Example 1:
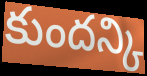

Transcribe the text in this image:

కుందన్కి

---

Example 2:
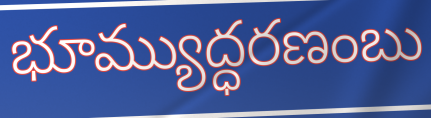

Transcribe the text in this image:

భూమ్యుద్ధరణంబు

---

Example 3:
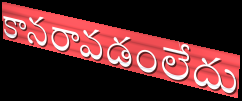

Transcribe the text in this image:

కానరావడంలేదు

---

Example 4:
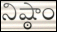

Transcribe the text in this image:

నిష్ఠాం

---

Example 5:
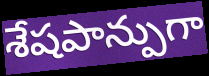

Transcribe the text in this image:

శేషపాన్పుగా